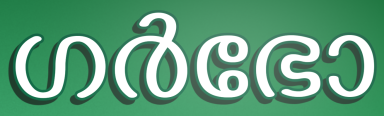
ഗർഭോ